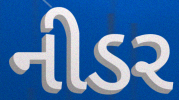
નીડર